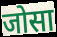
जोसा